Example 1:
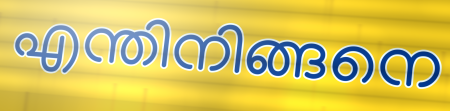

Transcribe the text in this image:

എന്തിനിങ്ങനെ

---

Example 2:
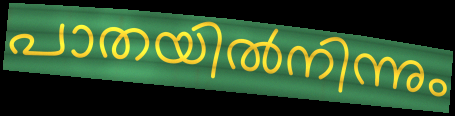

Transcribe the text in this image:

പാതയിൽനിന്നും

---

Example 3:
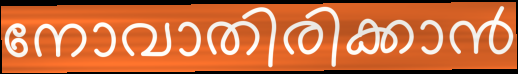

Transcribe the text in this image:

നോവാതിരിക്കാൻ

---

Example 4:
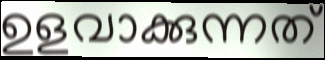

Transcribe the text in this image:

ഉളവാക്കുന്നത്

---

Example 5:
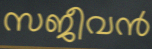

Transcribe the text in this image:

സജീവൻ